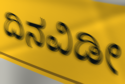
ದಿನವಿಡೀ